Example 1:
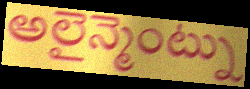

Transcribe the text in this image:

అలైన్మెంట్ను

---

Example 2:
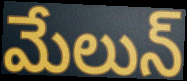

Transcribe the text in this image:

మేలున్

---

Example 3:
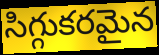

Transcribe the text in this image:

సిగ్గుకరమైన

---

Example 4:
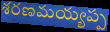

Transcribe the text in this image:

శరణమయ్యప్ప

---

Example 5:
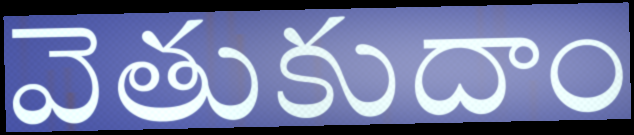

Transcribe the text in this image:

వెతుకుదాం